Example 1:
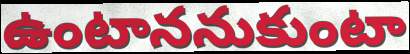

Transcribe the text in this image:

ఉంటాననుకుంటా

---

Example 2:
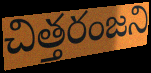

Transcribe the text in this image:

చిత్తరంజని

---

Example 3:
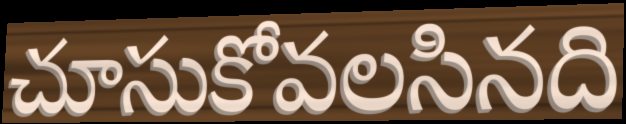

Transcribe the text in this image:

చూసుకోవలసినది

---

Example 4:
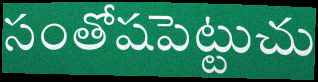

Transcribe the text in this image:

సంతోషపెట్టుచు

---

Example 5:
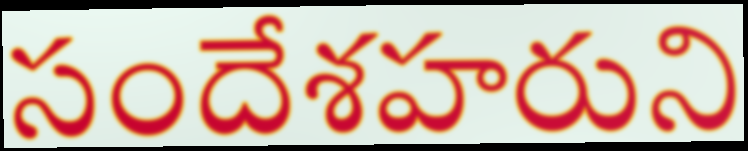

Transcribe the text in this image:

సందేశహరుని